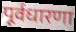
पूर्वधारणा